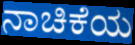
ನಾಚಿಕೆಯ